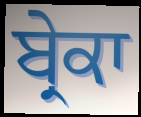
ਬ੍ਰੇਕਾ